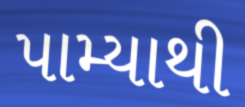
પામ્યાથી